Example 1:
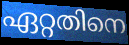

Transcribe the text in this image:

ഏറ്റതിനെ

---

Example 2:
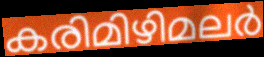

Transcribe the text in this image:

കരിമിഴിമലർ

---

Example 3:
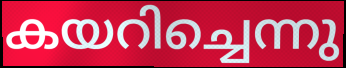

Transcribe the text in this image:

കയറിച്ചെന്നു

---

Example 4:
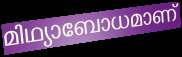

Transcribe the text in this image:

മിഥ്യാബോധമാണ്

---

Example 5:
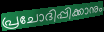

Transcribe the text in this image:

പ്രചോദിപ്പിക്കാനും